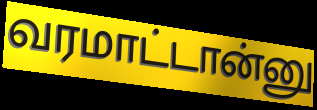
வரமாட்டான்னு